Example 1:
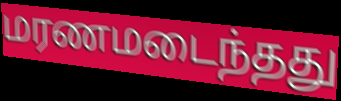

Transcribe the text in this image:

மரணமடைந்தது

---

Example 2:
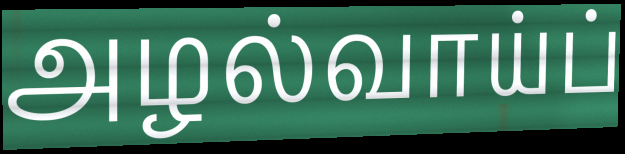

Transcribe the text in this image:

அழல்வாய்ப்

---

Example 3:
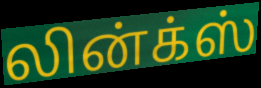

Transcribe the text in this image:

லின்க்ஸ்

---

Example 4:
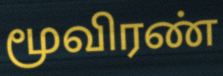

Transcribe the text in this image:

மூவிரண்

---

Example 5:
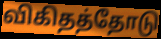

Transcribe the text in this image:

விகிதத்தோடு